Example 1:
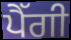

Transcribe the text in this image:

ਪੈੱਗੀ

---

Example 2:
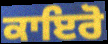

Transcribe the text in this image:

ਕਾਇਰੋ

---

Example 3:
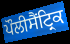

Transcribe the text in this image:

ਪੌਲੀਸੈਂਟ੍ਰਿਕ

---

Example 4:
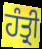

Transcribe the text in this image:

ਹੰਤ੍ਰੀ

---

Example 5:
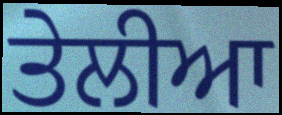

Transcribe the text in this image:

ਤੇਲੀਆ